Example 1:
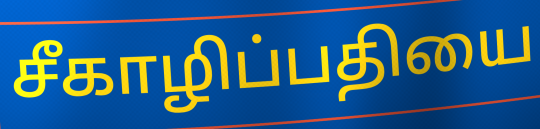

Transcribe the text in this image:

சீகாழிப்பதியை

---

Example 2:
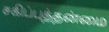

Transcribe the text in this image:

சகிப்புத்தன்மை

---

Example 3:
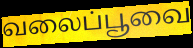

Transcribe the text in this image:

வலைப்பூவை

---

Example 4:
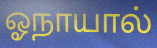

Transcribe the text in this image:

ஓநாயால்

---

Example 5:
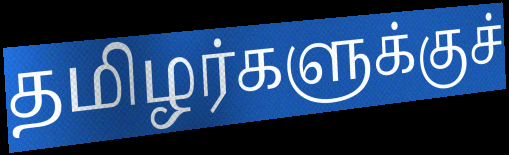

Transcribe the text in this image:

தமிழர்களுக்குச்